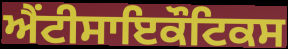
ਐਂਟੀਸਾਇਕੌਟਿਕਸ